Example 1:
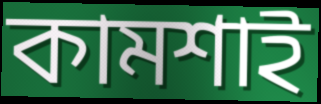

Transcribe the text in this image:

কামশাই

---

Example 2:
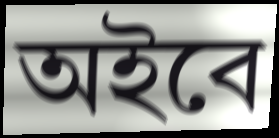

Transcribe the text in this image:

অইবে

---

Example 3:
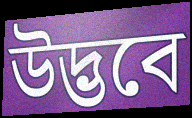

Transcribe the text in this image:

উদ্ভবে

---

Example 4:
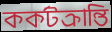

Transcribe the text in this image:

কর্কটক্রান্তি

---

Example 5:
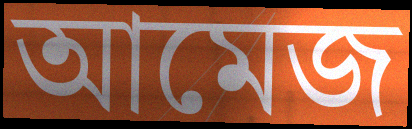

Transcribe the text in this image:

আমেজ